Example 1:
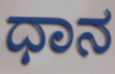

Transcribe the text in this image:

ಧಾನ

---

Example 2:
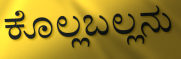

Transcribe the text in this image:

ಕೊಲ್ಲಬಲ್ಲನು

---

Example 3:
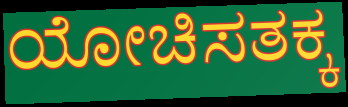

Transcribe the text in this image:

ಯೋಚಿಸತಕ್ಕ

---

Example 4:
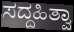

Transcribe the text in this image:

ಸದ್ದಹಿತ್ವಾ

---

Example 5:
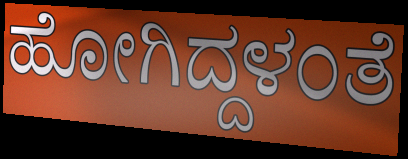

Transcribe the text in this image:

ಹೋಗಿದ್ದಳಂತೆ